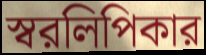
স্বরলিপিকার